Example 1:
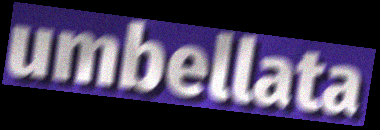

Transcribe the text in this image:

umbellata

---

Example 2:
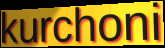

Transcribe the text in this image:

kurchoni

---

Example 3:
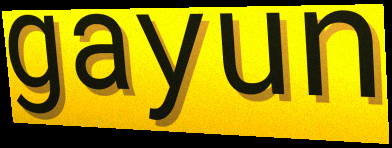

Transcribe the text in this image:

gayun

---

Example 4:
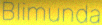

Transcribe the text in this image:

Blimunda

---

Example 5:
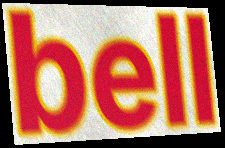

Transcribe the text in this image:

bell